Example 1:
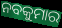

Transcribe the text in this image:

ନବକୁମାର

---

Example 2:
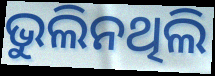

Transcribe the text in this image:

ଭୁଲିନଥିଲି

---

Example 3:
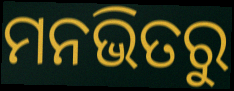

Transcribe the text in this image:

ମନଭିତରୁ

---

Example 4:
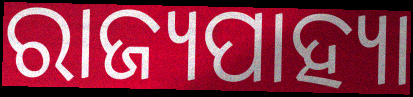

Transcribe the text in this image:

ରାଜ୍ୟପାହ୍ୟା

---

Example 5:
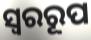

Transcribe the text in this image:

ସ୍ୱରରୂପ